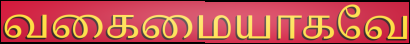
வகைமையாகவே